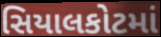
સિયાલકોટમાં